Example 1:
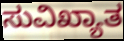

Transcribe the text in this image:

ಸುವಿಖ್ಯಾತ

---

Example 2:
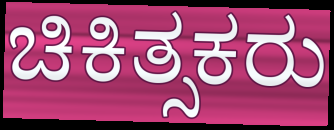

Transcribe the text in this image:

ಚಿಕಿತ್ಸಕರು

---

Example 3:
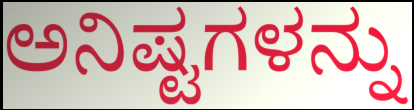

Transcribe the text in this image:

ಅನಿಷ್ಟಗಳನ್ನು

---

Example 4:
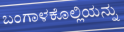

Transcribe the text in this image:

ಬಂಗಾಳಕೊಲ್ಲಿಯನ್ನು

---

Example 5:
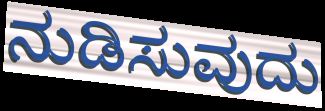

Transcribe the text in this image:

ನುಡಿಸುವುದು